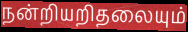
நன்றியறிதலையும்